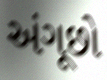
અંગૂછો